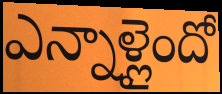
ఎన్నాళ్లైందో